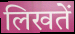
लिखतें